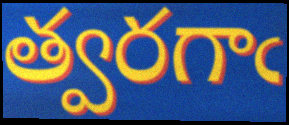
త్వరగాఁ